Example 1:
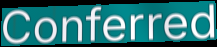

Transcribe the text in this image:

Conferred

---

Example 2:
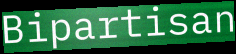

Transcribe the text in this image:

Bipartisan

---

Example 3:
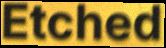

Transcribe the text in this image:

Etched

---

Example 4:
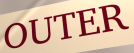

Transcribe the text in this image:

OUTER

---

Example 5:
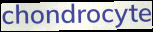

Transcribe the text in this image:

chondrocyte